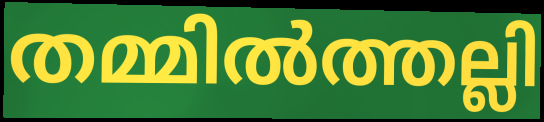
തമ്മിൽത്തല്ലി